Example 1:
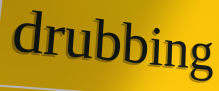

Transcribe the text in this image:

drubbing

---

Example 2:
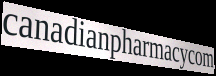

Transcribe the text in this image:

canadianpharmacycom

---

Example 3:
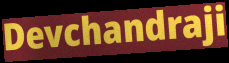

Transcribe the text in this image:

Devchandraji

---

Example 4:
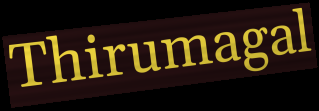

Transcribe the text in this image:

Thirumagal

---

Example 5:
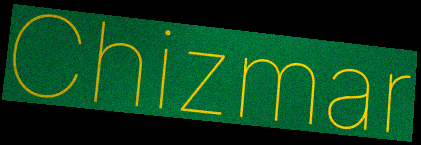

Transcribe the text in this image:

Chizmar